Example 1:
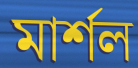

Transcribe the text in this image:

মার্শল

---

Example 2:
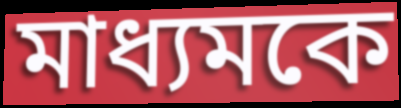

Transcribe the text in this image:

মাধ্যমকে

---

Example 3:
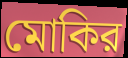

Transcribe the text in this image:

মোকির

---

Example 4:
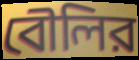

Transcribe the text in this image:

বৌলির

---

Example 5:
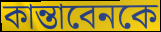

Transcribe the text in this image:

কান্তাবেনকে